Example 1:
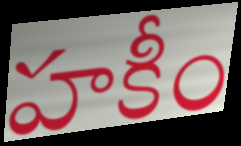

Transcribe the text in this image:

హకీం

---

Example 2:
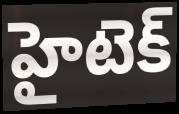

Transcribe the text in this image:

హైటెక్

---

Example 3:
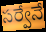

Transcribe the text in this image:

సర్వేనే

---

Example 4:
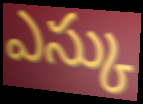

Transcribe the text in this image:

ఎస్కు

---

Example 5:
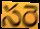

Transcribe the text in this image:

సరె